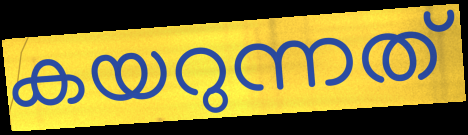
കയറുന്നത്